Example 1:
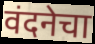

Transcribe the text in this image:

वंदनेचा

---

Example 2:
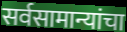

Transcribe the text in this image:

सर्वसामान्यांचा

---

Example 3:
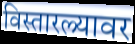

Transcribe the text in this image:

विस्तारल्यावर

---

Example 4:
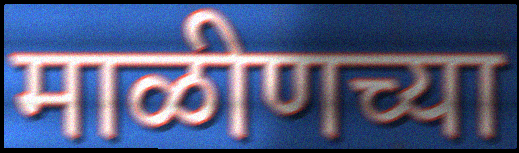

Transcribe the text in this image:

माळीणच्या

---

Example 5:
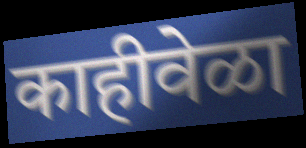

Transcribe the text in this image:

काहीवेळा